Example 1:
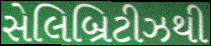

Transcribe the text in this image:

સેલિબ્રિટીઝથી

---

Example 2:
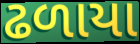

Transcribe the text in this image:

ઢળાયા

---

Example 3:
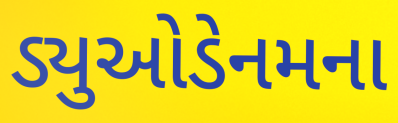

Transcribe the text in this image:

ડ્યુઓડેનમના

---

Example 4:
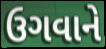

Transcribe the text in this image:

ઉગવાને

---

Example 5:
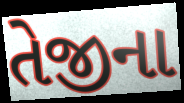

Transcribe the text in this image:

તેજીના